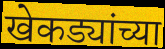
खेकड्यांच्या